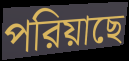
পরিয়াছে